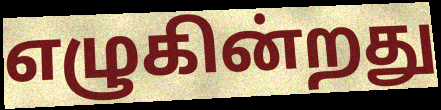
எழுகின்றது